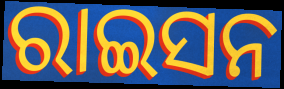
ରାଇସନ